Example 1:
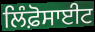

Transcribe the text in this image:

ਲਿੰਫ਼ੋਸਾਈਟ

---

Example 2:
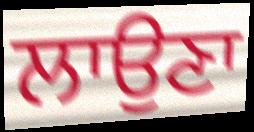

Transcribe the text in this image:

ਲਾਉਣਾ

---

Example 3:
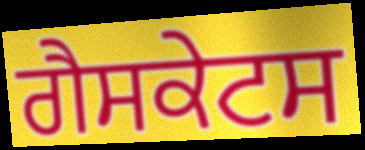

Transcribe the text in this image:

ਗੈਸਕੇਟਸ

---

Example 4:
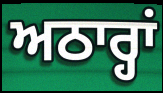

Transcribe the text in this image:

ਅਠਾਰ੍ਹਾਂ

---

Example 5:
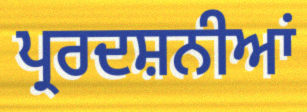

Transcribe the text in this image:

ਪ੍ਰਰਦਸ਼ਨੀਆਂ